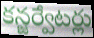
కన్జర్వేటర్లు